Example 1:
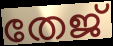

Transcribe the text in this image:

തേജ്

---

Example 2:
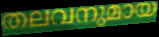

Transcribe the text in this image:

തലവനുമായ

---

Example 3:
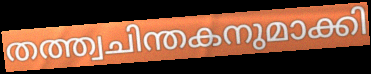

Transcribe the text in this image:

തത്ത്വചിന്തകനുമാക്കി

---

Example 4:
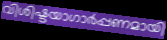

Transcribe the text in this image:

വിശിഷ്ടയാഗാർപ്പണമായി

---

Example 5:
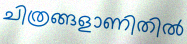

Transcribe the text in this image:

ചിത്രങ്ങളാണിതിൽ